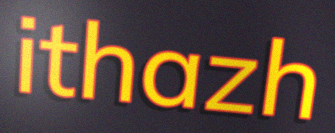
ithazh